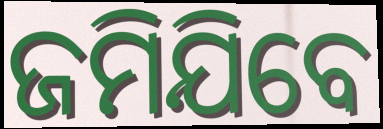
ଜମିଯିବେ